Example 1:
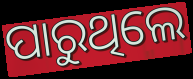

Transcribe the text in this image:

ପାରୁଥିଲେ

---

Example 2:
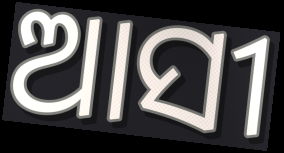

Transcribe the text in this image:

ଆସୀ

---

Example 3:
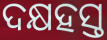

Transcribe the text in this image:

ଦକ୍ଷହସ୍ତ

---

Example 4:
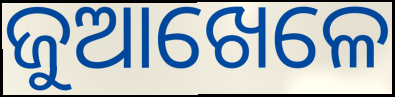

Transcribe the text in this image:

ଜୁଆଖେଳେ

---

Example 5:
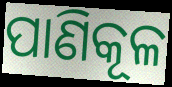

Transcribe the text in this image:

ପାଣିକୂଳ